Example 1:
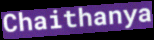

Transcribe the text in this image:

Chaithanya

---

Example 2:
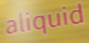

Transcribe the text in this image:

aliquid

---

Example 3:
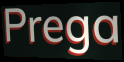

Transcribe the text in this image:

Prega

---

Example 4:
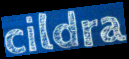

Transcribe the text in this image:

cildra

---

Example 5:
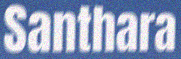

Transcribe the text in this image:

Santhara